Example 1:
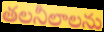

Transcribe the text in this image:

తలనీలాలను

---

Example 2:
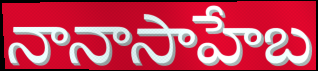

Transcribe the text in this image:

నానాసాహేబ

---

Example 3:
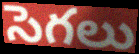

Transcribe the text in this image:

సెగలు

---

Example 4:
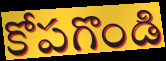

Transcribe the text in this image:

కోపగొండి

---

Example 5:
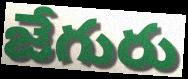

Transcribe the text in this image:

జేగురు